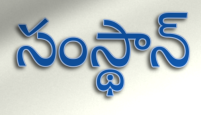
సంస్థాన్